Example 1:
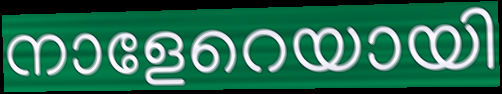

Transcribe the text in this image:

നാളേറെയായി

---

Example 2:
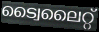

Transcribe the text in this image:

ട്വൈലൈറ്റ്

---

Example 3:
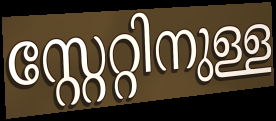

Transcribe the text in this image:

സ്റ്റേറ്റിനുള്ള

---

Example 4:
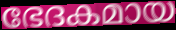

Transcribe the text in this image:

ഭേദകമായ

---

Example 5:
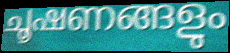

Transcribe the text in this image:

ചൂഷണങ്ങളും